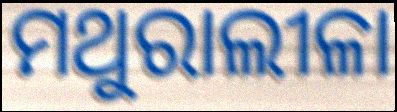
ମଥୁରାଲୀଳା